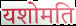
यशोमति